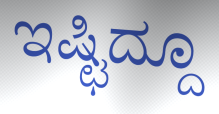
ಇಷ್ಟಿದ್ದೂ